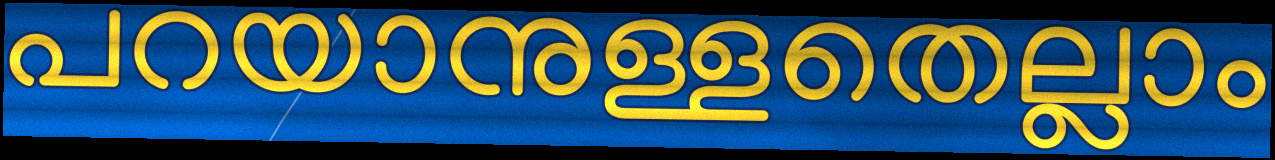
പറയാനുള്ളതെല്ലാം